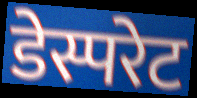
डेस्परेट